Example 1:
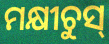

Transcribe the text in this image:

ମକ୍ଷୀଚୁସ୍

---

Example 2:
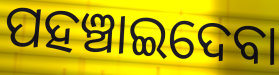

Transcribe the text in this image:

ପହଞ୍ଚାଇଦେବା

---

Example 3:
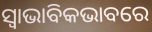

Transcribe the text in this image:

ସ୍ୱାଭାବିକଭାବରେ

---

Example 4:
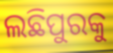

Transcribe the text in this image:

ଲଛିପୁରକୁ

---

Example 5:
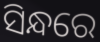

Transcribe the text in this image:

ସିନ୍ଧରେ